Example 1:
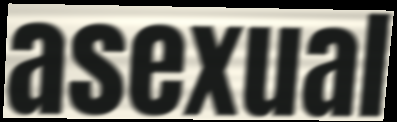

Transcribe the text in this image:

asexual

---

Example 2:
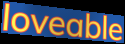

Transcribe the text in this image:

loveable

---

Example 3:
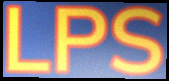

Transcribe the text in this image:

LPS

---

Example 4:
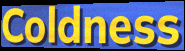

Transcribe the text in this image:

Coldness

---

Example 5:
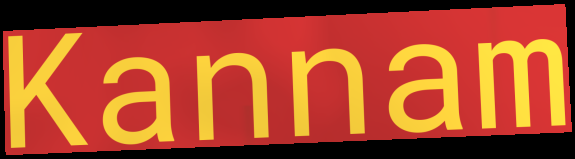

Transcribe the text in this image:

Kannam